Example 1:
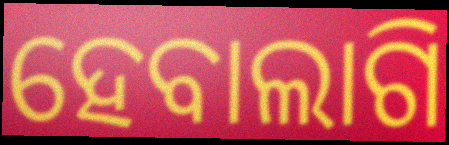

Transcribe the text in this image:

ହେବାଲାଗି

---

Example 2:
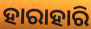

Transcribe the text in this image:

ହାରାହାରି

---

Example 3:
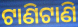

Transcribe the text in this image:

ଟାଣିଟାଣି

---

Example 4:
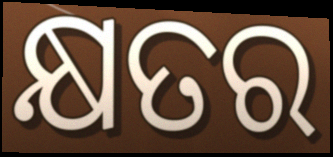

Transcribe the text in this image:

କ୍ଷତର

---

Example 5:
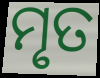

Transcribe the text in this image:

ମୃତ